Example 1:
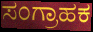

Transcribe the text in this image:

ಸಂಗ್ರಾಹಕ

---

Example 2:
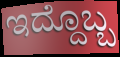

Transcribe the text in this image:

ಇದ್ದೊಬ್ಬ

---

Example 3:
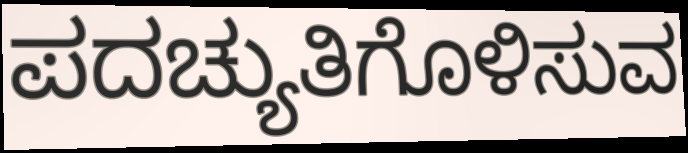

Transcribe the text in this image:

ಪದಚ್ಯುತಿಗೊಳಿಸುವ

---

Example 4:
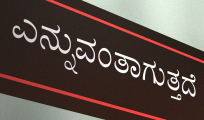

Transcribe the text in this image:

ಎನ್ನುವಂತಾಗುತ್ತದೆ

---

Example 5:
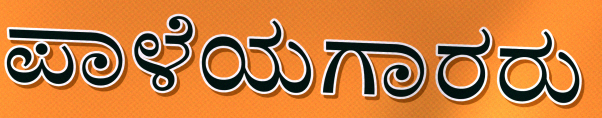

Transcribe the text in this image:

ಪಾಳೆಯಗಾರರು